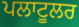
ਪਲਾਟੂਲਰ